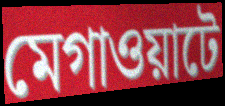
মেগাওয়াটে